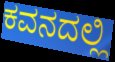
ಕವನದಲ್ಲಿ